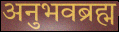
अनुभवब्रह्म